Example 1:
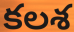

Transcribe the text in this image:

కలశ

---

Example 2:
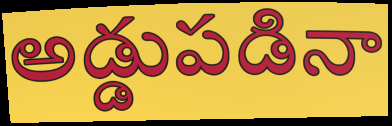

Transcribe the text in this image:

అడ్డుపడినా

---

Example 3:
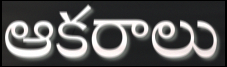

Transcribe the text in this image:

ఆకరాలు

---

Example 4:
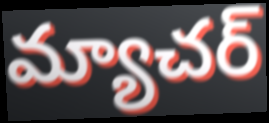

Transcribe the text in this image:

మ్యాచర్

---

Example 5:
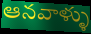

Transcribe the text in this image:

ఆనవాళ్ళు